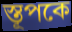
স্তূপকে